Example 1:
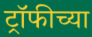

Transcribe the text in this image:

ट्रॉफीच्या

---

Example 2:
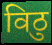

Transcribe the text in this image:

विठु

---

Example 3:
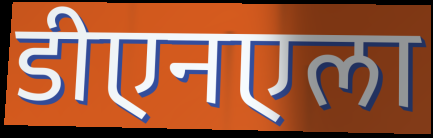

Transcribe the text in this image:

डीएनएला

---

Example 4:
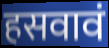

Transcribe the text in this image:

हसवावं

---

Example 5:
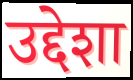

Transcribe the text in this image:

उद्देशा